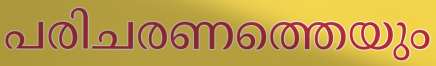
പരിചരണത്തെയും